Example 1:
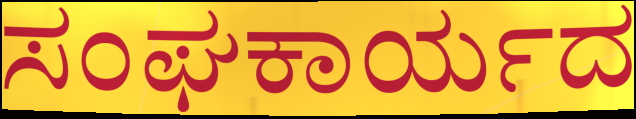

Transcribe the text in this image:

ಸಂಘಕಾರ್ಯದ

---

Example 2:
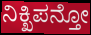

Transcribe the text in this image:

ನಿಕ್ಖಿಪನ್ತೋ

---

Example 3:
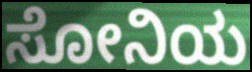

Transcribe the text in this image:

ಸೋನಿಯ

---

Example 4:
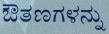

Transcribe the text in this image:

ಔತಣಗಳನ್ನು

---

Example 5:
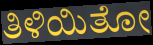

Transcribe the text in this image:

ತಿಳಿಯಿತೋ